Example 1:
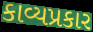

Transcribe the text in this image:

કાવ્યપ્રકાર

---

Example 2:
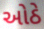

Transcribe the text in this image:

ઓઠે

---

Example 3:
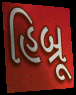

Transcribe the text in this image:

હિબ્રૂ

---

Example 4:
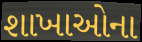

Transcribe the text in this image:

શાખાઓના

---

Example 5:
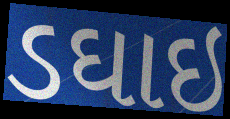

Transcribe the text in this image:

ડઘાઇ